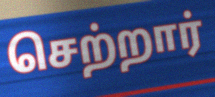
செற்றார்